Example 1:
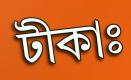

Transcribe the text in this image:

টীকাঃ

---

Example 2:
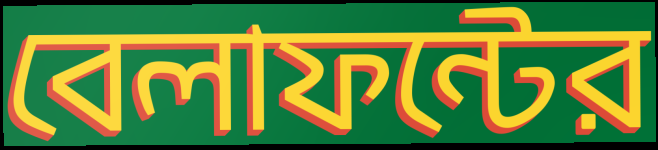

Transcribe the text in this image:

বেলাফন্টের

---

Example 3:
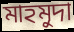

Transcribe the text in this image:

মাহমুদা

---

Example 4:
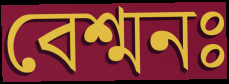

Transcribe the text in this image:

বেশ্মনঃ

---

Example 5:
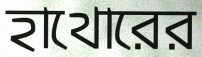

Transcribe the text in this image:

হাথোরের